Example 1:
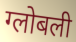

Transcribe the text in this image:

ग्लोबली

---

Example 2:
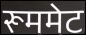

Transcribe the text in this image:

रूममेट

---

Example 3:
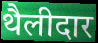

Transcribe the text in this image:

थैलीदार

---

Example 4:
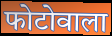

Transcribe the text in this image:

फोटोवाला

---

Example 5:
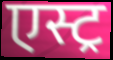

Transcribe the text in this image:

एस्ट्र